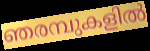
ഞരമ്പുകളിൽ